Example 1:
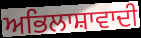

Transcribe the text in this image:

ਅਭਿਲਾਸ਼ਾਵਾਦੀ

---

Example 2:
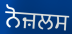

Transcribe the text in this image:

ਨੋਜ਼ਲਸ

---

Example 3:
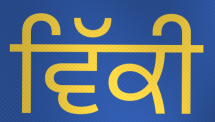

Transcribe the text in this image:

ਵਿੱਕੀ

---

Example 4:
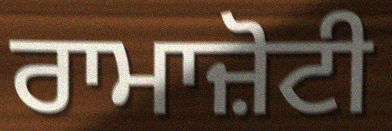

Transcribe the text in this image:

ਰਾਮਾਜ਼ੋਟੀ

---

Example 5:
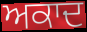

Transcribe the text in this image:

ਅਕਾਦ